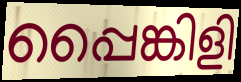
പ്പൈങ്കിളി